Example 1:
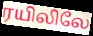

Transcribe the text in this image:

ரயிலிலே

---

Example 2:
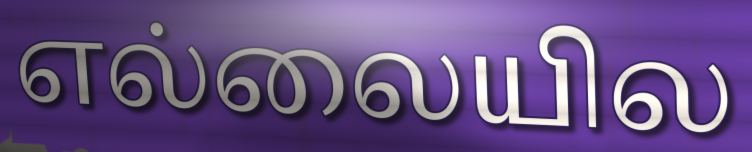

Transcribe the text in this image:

எல்லையில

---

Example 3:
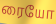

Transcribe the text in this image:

ரையோ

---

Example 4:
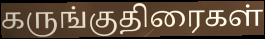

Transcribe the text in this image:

கருங்குதிரைகள்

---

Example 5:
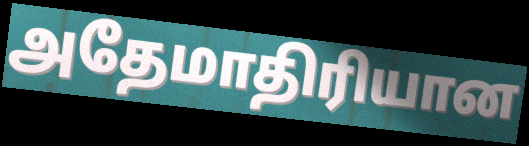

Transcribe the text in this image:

அதேமாதிரியான